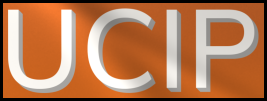
UCIP